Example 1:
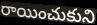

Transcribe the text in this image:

రాయించుకుని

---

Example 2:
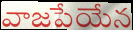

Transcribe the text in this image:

వాజపేయేన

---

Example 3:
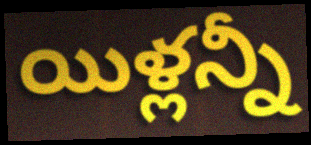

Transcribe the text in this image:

యిళ్లన్నీ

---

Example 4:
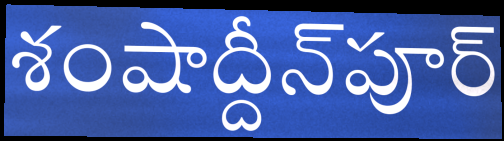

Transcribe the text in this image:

శంషాద్దీన్‌పూర్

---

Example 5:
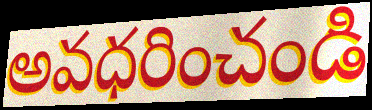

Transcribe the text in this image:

అవధరించండి